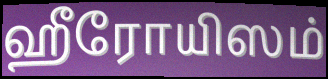
ஹீரோயிஸம்